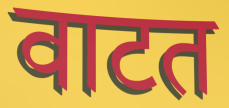
वाटत